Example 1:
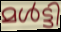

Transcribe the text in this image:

മൾട്ടി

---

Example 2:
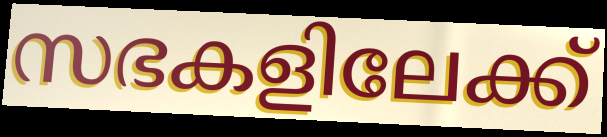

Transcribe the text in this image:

സഭകളിലേക്ക്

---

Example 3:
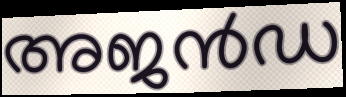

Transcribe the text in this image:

അജൻഡ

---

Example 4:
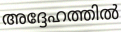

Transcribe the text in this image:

അദ്ദേഹത്തിൽ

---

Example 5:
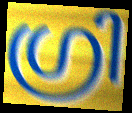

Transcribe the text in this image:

ഗ്രി